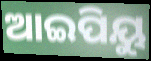
ଆଇପିୟୁ